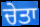
ਚੇਤਾ